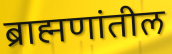
ब्राह्मणांतील